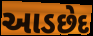
આડછેદ